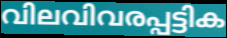
വിലവിവരപ്പട്ടിക